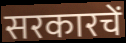
सरकारचें